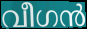
വീഗൻ